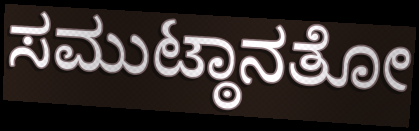
ಸಮುಟ್ಠಾನತೋ